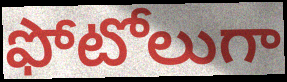
ఫోటోలుగా